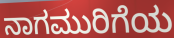
ನಾಗಮುರಿಗೆಯ